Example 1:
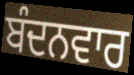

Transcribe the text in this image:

ਬੰਦਨਵਾਰ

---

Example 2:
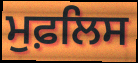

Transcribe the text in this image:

ਮੁਫ਼ਲਿਸ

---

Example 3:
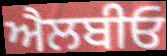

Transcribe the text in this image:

ਐਲਬੀਓ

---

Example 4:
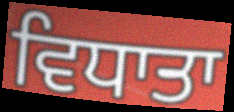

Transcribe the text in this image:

ਵਿਧਾਤਾ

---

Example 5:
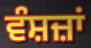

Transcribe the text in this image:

ਵੰਸ਼ਜ਼ਾਂ